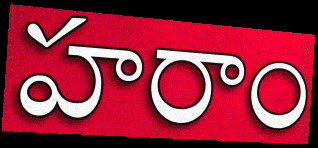
హరాం